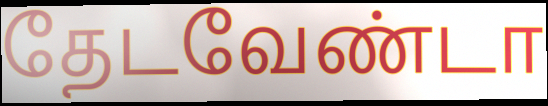
தேடவேண்டா